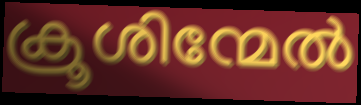
ക്രൂശിന്മേൽ